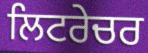
ਲਿਟਰੇਚਰ